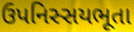
ઉપનિસ્સયભૂતા